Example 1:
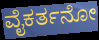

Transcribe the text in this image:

ವೈಕರ್ತನೋ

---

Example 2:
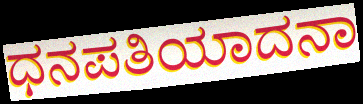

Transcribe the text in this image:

ಧನಪತಿಯಾದನಾ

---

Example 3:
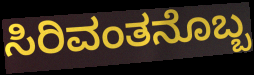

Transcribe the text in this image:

ಸಿರಿವಂತನೊಬ್ಬ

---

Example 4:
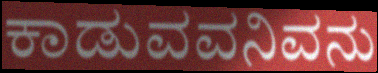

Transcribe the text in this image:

ಕಾಡುವವನಿವನು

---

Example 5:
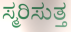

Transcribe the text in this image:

ಸ್ಮರಿಸುತ್ತ